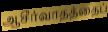
ஆசீர்வாதத்தைப்